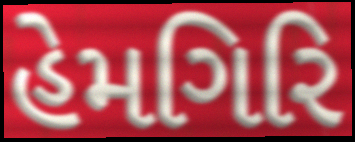
હેમગિરિ